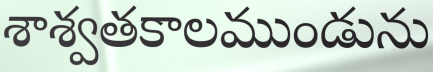
శాశ్వతకాలముండును